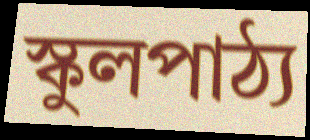
স্কুলপাঠ্য